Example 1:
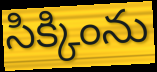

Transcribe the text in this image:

సిక్కింను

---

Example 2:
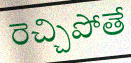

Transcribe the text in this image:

రెచ్చిపోతే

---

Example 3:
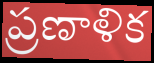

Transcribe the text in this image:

ప్రణాళిక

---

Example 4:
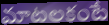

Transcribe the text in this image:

మాటలకంటే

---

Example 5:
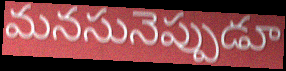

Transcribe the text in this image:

మనసునెప్పుడూ